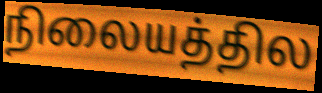
நிலையத்தில